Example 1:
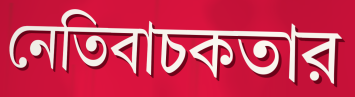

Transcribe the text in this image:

নেতিবাচকতার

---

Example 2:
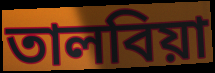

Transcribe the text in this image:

তালবিয়া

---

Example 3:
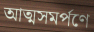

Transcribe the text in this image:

আত্মসমর্পণে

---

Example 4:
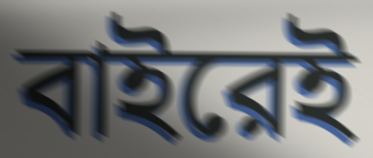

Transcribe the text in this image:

বাইরেই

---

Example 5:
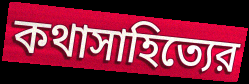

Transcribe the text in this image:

কথাসাহিত্যের